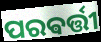
ପରଵର୍ତ୍ତୀ